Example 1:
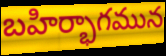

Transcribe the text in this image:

బహిర్భాగమున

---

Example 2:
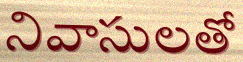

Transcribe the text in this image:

నివాసులతో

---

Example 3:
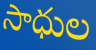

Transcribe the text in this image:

సాధుల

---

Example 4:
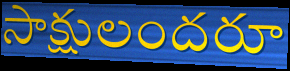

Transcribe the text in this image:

సాక్షులందరూ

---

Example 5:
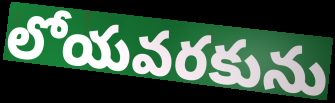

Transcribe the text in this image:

లోయవరకును